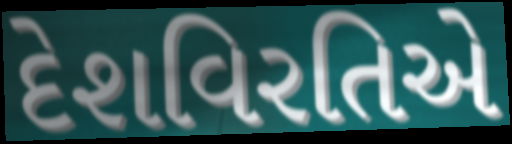
દેશવિરતિએ